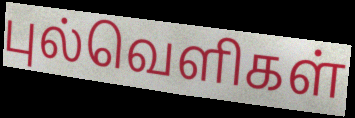
புல்வெளிகள்